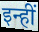
इन्‍हीं